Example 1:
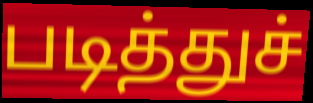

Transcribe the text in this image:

படித்துச்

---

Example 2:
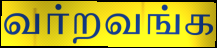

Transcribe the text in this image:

வர்றவங்க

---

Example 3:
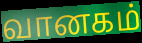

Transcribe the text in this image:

வானகம்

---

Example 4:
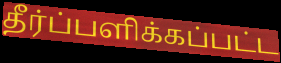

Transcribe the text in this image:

தீர்ப்பளிக்கப்பட்ட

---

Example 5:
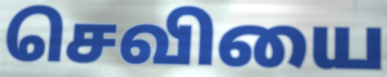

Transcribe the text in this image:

செவியை